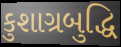
કુશાગ્રબુદ્ધિ